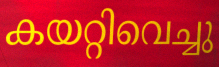
കയറ്റിവെച്ചു